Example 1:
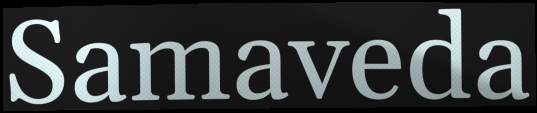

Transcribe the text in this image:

Samaveda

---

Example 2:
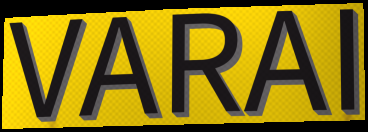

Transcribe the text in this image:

VARAI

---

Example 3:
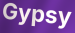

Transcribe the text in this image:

Gypsy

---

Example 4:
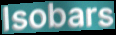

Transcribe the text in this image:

Isobars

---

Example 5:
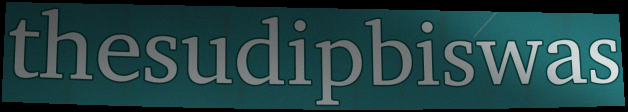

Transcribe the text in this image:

thesudipbiswas